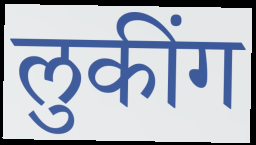
लुकींग